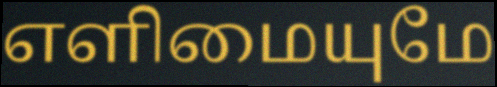
எளிமையுமே